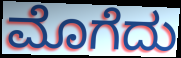
ಮೊಗೆದು